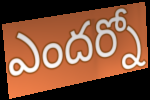
ఎందర్నో